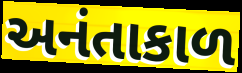
અનંતાકાળ